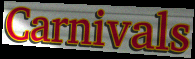
Carnivals